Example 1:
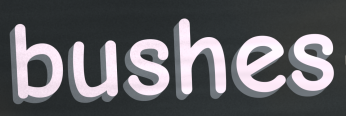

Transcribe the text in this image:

bushes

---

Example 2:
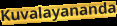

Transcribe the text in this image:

Kuvalayananda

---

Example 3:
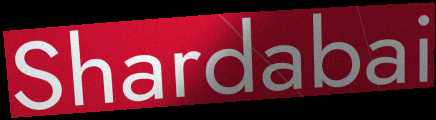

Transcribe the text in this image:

Shardabai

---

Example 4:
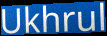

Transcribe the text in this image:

Ukhrul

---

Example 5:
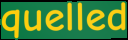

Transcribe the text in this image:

quelled